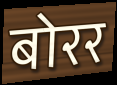
बोरर